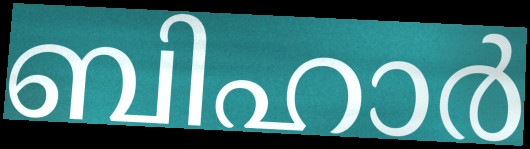
ബിഹാർ